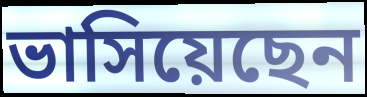
ভাসিয়েছেন